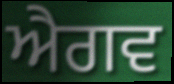
ਐਗਵ